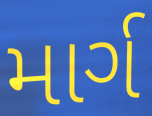
માર્ગ